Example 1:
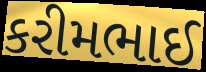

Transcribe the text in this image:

કરીમભાઈ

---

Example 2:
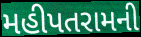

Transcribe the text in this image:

મહીપતરામની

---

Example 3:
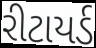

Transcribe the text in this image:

રીટાયર્ડ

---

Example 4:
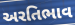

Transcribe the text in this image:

અરતિભાવ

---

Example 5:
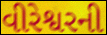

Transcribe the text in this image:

વીરેશ્વરની